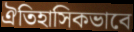
ঐতিহাসিকভাবে